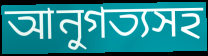
আনুগত্যসহ